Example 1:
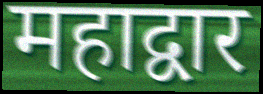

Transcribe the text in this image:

महाद्वार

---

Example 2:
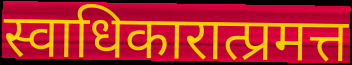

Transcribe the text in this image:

स्वाधिकारात्प्रमत्त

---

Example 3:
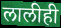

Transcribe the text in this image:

लालीही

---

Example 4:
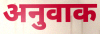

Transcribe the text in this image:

अनुवाक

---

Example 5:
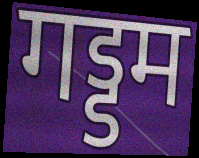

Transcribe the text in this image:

गड्डम